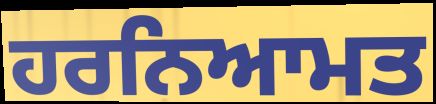
ਹਰਨਿਆਮਤ